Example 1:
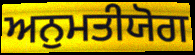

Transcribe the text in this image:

ਅਨੁਮਤੀਯੋਗ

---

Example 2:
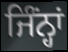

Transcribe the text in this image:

ਜਿੰਂਨ੍ਹਾਂ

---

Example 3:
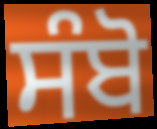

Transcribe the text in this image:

ਸੰਬੋ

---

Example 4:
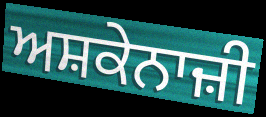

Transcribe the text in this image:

ਅਸ਼ਕੇਨਾਜ਼ੀ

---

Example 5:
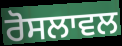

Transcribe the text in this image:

ਰੋਸਲਾਵਲ